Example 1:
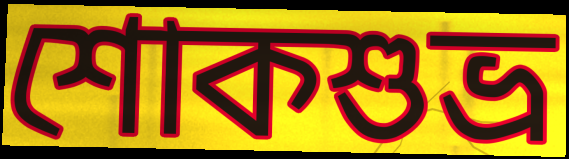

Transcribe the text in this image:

শোকশুভ্র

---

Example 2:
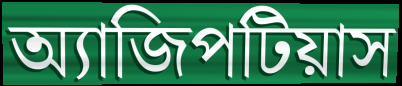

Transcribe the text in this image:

অ্যাজিপটিয়াস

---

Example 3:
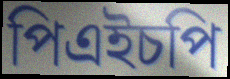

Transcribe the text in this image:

পিএইচপি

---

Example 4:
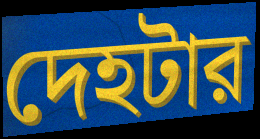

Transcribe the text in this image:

দেহটার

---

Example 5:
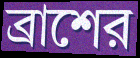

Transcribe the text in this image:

ব্রাশের